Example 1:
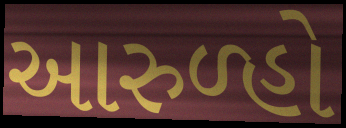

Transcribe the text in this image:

આરુળ્હો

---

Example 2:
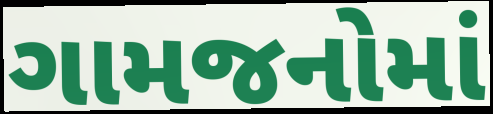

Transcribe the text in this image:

ગામજનોમાં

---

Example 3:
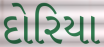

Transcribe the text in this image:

દોરિયા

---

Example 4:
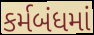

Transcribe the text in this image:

કર્મબંધમાં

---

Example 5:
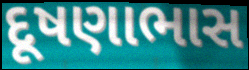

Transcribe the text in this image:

દૂષણાભાસ